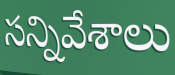
సన్నివేశాలు